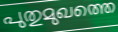
പുതുമുഖത്തെ